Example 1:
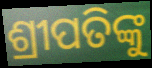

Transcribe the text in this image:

ଶ୍ରୀପତିଙ୍କୁ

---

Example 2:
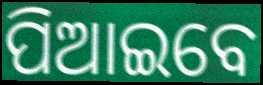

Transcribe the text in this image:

ପିଆଇବେ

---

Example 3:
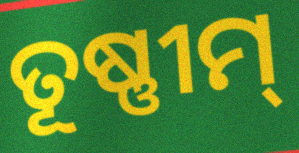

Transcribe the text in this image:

ତୂଷ୍ଣୀମ୍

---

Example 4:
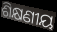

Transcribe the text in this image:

ଶିକ୍ଷଣୀୟ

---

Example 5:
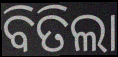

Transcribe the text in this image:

ବିତିଲା